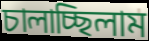
চালাচ্ছিলাম